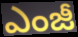
ఎంజీ